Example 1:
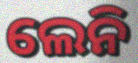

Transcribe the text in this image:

ଲେନି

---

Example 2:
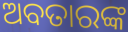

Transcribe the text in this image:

ଅବତାରଙ୍କ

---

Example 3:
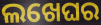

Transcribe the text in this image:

ଲଖେଘର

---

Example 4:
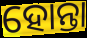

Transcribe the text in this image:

ହୋନ୍ତା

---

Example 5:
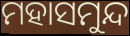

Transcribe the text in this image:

ମହାସମୁନ୍ଦ